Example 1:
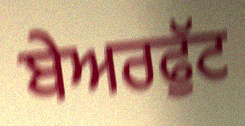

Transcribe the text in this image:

ਬੇਅਰਫੁੱਟ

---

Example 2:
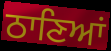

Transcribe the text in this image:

ਠਾਣਿਆਂ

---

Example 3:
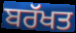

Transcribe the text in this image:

ਬਰੱਖਤ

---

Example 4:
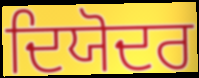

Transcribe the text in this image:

ਦਿਯੋਦਰ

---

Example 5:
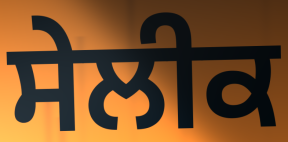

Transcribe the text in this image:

ਸੇਲੀਕ